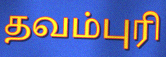
தவம்புரி